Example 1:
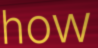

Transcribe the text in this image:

how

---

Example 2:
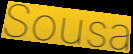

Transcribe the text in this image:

Sousa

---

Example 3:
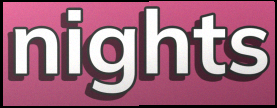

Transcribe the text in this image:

nights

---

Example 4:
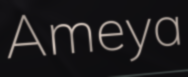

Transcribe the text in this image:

Ameya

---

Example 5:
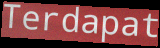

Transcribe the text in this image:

Terdapat